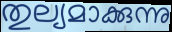
തുല്യമാക്കുന്നു